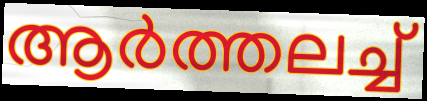
ആർത്തലച്ച്